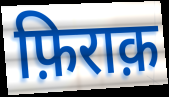
फ़िराक़